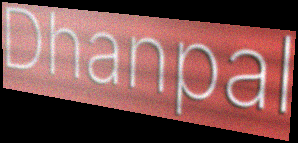
Dhanpal